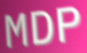
MDP